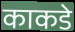
काकडे